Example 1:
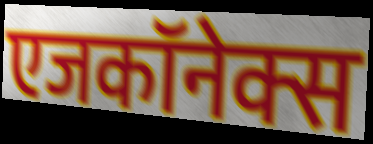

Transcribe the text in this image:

एजकॉनेक्स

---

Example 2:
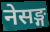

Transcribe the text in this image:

नेसङ्ग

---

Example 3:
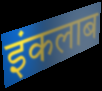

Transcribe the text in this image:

इंकलाब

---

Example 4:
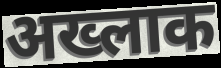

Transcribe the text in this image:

अख्लाक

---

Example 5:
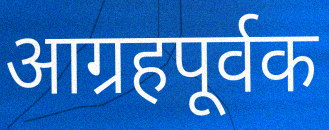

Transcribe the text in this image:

आग्रहपूर्वक